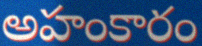
అహంకారం